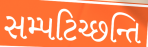
સમ્પટિચ્છન્તિ